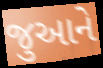
જુઆને